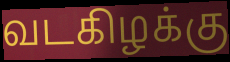
வடகிழக்கு